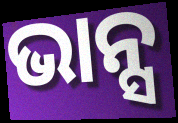
ଭାନ୍ସ